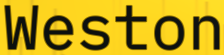
Weston